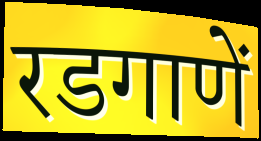
रडगाणें